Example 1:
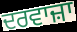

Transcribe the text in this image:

ਦਰਵਾਜ਼ਾ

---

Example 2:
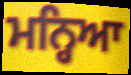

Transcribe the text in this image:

ਮਨ੍ਹਿਆ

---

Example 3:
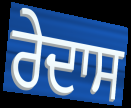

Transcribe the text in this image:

ਰੇਦਾਸ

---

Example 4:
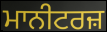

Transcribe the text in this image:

ਮਾਨੀਟਰਜ਼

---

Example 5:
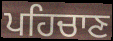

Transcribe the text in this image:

ਪਹਿਚਾਣ